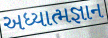
અધ્યાત્મજ્ઞાન